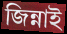
জিন্নাই